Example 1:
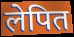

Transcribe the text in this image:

लेपित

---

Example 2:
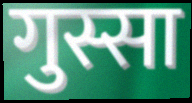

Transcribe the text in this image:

गुस्सा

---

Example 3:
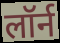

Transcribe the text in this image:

लॉर्न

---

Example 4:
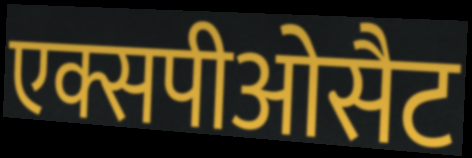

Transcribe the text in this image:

एक्सपीओसैट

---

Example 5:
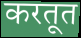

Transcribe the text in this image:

करतूत